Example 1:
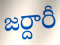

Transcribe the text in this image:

జర్దారీ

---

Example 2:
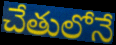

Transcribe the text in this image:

చేతులోనే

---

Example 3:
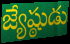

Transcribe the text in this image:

జ్యేష్ఠుడు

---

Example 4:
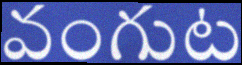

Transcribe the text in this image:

వంగుట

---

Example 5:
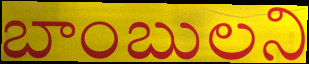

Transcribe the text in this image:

బాంబులని